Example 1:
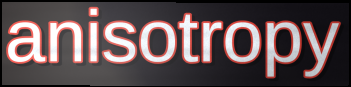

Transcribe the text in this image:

anisotropy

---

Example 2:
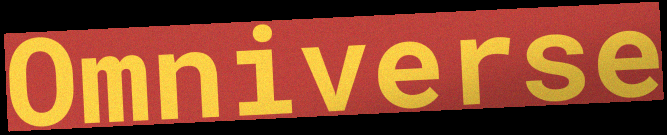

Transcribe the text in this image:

Omniverse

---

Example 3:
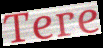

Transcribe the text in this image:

Tere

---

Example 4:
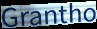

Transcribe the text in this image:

Grantho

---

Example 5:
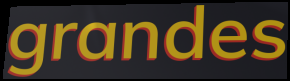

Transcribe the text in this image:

grandes